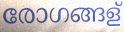
രോഗങ്ങള്